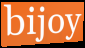
bijoy